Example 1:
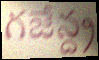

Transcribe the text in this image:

గజేన్ద్ర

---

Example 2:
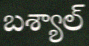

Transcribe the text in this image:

బశ్యాల్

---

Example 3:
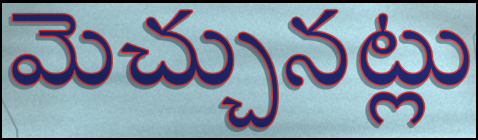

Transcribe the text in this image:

మెచ్చునట్లు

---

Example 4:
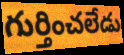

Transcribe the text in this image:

గుర్తించలేడు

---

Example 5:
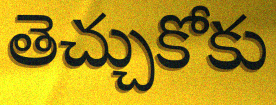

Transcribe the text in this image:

తెచ్చుకోకు